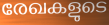
രേഖകളുടെ